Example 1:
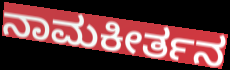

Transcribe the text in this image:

ನಾಮಕೀರ್ತನ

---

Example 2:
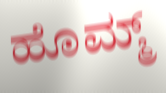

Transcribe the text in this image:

ಹೊಮ್ಮ್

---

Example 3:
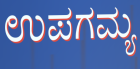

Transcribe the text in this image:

ಉಪಗಮ್ಯ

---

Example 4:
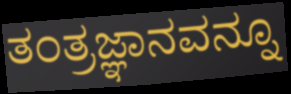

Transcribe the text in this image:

ತಂತ್ರಜ್ಞಾನವನ್ನೂ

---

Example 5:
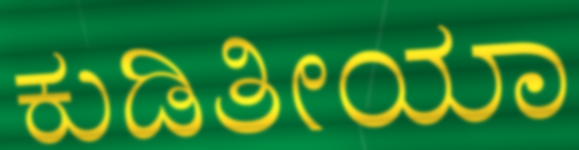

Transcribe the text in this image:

ಕುಡಿತೀಯಾ